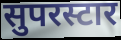
सुपरस्टार